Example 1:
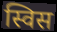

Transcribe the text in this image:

स्विस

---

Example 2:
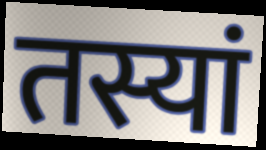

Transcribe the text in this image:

तस्यां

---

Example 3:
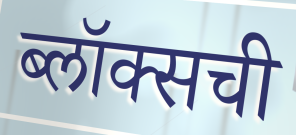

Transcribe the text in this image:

ब्लॉक्सची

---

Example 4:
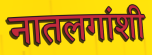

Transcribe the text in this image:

नातलगांशी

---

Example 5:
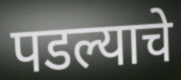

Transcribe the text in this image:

पडल्याचे